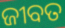
ଜୀବତ